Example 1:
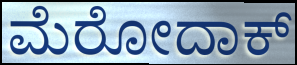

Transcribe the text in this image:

ಮೆರೋದಾಕ್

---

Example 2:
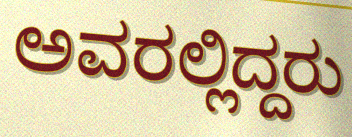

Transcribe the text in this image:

ಅವರಲ್ಲಿದ್ದರು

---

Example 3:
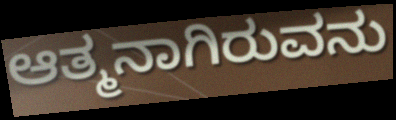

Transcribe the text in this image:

ಆತ್ಮನಾಗಿರುವನು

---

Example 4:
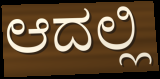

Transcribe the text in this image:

ಆದಲ್ಲಿ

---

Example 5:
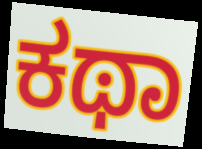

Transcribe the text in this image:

ಕಥಾ